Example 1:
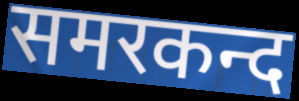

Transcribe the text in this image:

समरकन्द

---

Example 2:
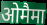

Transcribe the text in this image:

ओमैमा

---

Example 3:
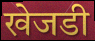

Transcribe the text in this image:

खेजडी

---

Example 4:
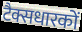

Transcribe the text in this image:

टैक्सधारकों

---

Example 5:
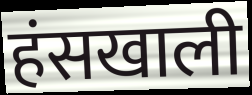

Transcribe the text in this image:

हंसखाली